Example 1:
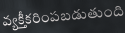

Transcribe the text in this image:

వ్యక్తీకరింపబడుతుంది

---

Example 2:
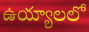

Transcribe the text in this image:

ఉయ్యాలలో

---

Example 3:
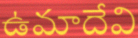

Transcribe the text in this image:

ఉమాదేవి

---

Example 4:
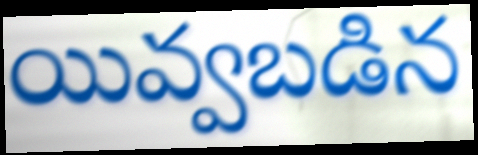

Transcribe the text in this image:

యివ్వబడిన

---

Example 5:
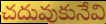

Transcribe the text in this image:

చదువుకునేవి